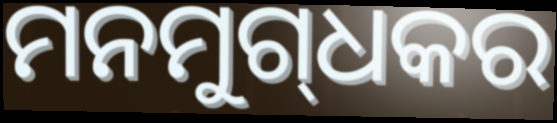
ମନମୁଗ୍‌ଧକର